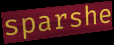
sparshe